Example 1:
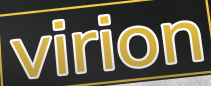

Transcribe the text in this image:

virion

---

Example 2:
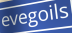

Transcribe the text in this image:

evegoils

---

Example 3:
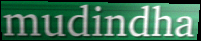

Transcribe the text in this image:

mudindha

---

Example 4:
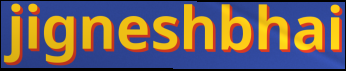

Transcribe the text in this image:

jigneshbhai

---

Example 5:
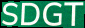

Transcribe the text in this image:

SDGT